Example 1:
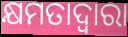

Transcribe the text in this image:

କ୍ଷମତାଦ୍ୱାରା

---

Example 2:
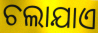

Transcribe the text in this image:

ଚଲାଯାଏ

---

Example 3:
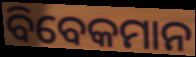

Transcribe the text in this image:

ବିବେକମାନ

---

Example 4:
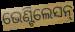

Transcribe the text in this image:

ଭେଣ୍ଟିଲେସନ୍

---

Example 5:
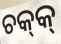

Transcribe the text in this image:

ଚକ୍‌କ୍